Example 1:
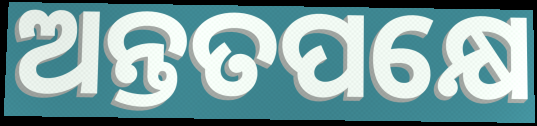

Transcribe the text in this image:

ଅନ୍ତତପକ୍ଷେ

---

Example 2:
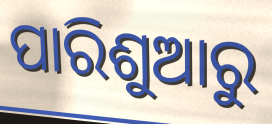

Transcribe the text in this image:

ପାରିଶୁଆରୁ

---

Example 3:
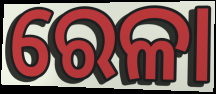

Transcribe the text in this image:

ରେଳା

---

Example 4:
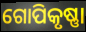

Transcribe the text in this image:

ଗୋପିକୃଷ୍ଣା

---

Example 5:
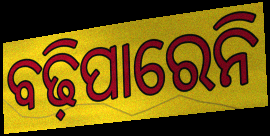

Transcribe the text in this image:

ବଢ଼ିପାରେନି